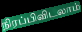
நிரப்பிவிடலாம்